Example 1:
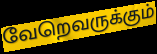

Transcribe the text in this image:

வேறெவருக்கும்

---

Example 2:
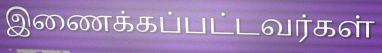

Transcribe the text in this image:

இணைக்கப்பட்டவர்கள்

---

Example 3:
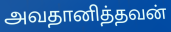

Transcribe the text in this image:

அவதானித்தவன்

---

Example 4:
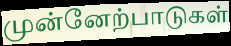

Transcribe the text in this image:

முன்னேற்பாடுகள்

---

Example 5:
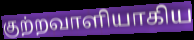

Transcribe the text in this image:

குற்றவாளியாகிய